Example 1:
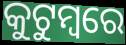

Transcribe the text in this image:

କୁଟୁମ୍ଵରେ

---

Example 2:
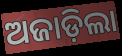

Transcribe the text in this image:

ଅଜାଡ଼ିଲା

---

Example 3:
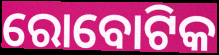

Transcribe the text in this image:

ରୋବୋଟିକ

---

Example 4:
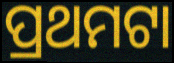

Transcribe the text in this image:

ପ୍ରଥମଟା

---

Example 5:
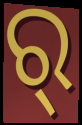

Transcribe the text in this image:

ର୍